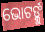
ଭୋଟର୍ଙ୍କୁ